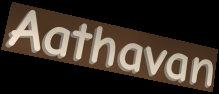
Aathavan